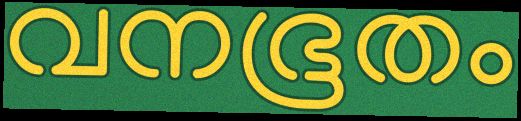
വനഭൂതം